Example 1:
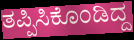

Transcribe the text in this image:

ತಪ್ಪಿಸಿಕೊಂಡಿದ್ದ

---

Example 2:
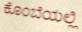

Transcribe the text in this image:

ಕೊಂಬೆಯಲ್ಲಿ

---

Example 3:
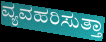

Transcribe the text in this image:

ವ್ಯವಹರಿಸುತ್ತಾ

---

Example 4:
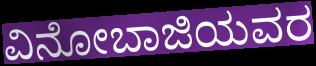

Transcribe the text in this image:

ವಿನೋಬಾಜಿಯವರ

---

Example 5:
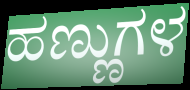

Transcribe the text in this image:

ಹಣ್ಣುಗಳ